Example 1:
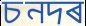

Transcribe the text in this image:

চনদৰ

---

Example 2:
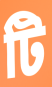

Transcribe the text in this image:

টি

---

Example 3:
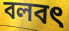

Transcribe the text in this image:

বলবৎ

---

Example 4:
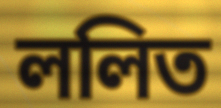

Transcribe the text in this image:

ললিত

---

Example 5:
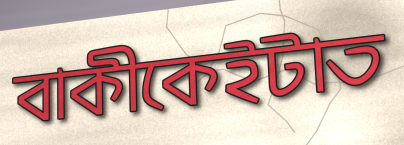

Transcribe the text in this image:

বাকীকেইটাত